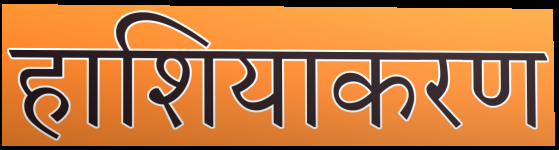
हाशियाकरण